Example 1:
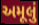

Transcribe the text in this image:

અમૂલું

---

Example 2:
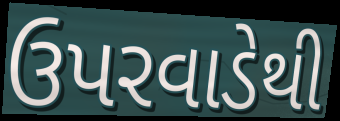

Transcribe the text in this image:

ઉપરવાડેથી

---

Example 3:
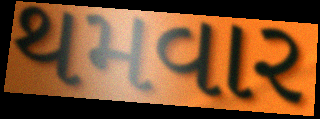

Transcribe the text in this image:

થમવાર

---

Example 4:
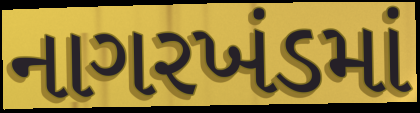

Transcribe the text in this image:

નાગરખંડમાં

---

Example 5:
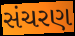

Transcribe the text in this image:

સંચરણ